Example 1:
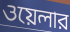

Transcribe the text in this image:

ওয়েলার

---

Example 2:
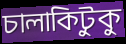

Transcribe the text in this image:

চালাকিটুকু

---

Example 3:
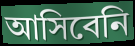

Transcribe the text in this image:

আসিবেনি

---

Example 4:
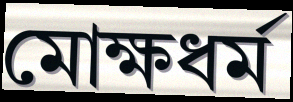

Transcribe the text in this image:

মোক্ষধর্ম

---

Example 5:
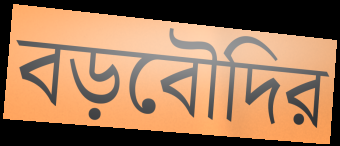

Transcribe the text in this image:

বড়বৌদির